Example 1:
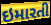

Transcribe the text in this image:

ઇમારતી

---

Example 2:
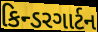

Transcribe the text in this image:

કિન્ડરગાર્ટન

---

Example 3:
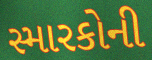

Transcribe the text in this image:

સ્મારકોની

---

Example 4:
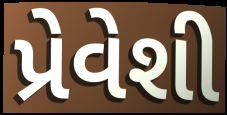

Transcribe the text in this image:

પ્રેવેશી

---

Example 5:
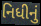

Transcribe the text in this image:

નિધીનું